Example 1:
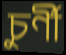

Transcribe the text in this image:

চুর্ণী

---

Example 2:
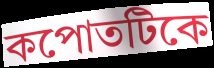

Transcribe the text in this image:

কপোতটিকে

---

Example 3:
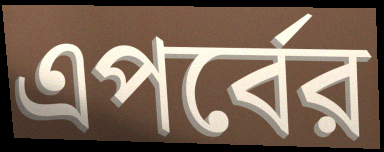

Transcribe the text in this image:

এপর্বের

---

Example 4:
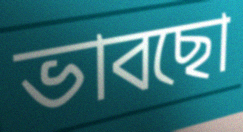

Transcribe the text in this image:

ভাবছো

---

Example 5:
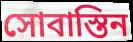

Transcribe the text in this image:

সোবাস্তিন